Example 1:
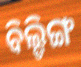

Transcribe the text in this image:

ବିଲ୍ଡିଙ୍ଗ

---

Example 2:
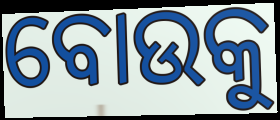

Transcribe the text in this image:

ବୋଉକୁ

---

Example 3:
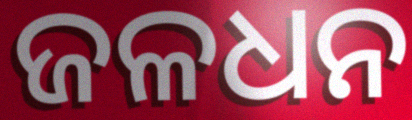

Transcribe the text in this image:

ଜଳଧନ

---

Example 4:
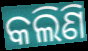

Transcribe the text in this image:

କଲିଣି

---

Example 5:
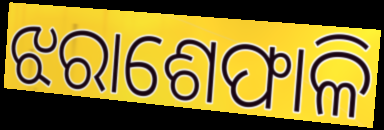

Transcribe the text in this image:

ଝରାଶେଫାଳି